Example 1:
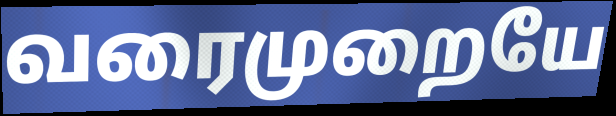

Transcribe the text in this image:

வரைமுறையே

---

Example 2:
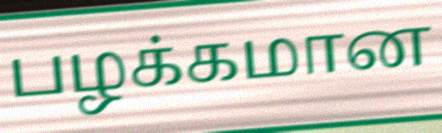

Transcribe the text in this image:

பழக்கமான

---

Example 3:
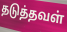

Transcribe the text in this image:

தடுத்தவள்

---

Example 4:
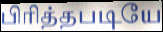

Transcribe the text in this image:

பிரித்தபடியே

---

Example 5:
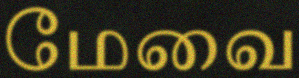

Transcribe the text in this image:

மேவை